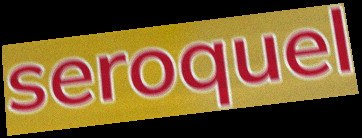
seroquel